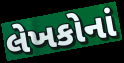
લેખકોનાં